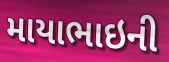
માયાભાઇની